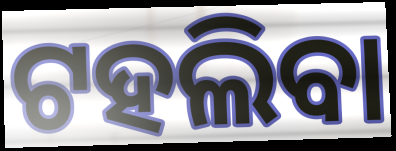
ଟହଲିବା